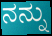
ನನ್ನು